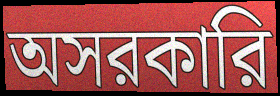
অসরকারি